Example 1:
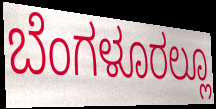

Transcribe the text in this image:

ಬೆಂಗಳೂರಲ್ಲೂ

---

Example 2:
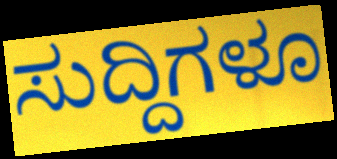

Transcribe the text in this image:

ಸುದ್ದಿಗಳೂ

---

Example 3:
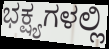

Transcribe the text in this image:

ಭಕ್ಷ್ಯಗಳಲ್ಲಿ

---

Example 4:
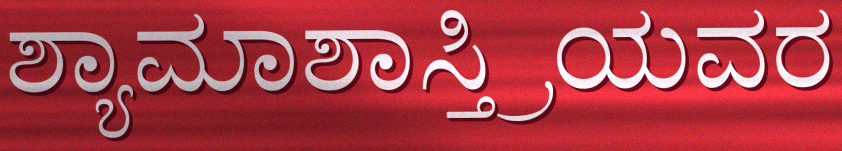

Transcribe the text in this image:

ಶ್ಯಾಮಾಶಾಸ್ತ್ರಿಯವರ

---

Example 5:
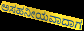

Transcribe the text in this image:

ಅಸಹನೀಯವಾದಾಗ